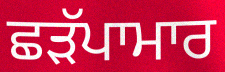
ਛੜੱਪਾਮਾਰ